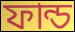
ফান্ড